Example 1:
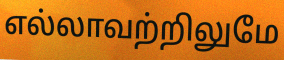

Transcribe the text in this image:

எல்லாவற்றிலுமே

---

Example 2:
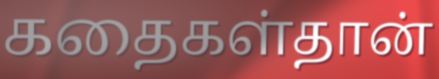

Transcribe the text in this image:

கதைகள்தான்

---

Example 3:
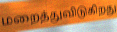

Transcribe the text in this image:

மறைத்துவிடுகிறது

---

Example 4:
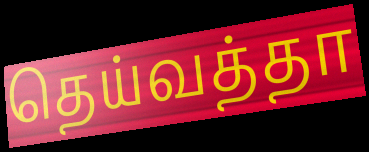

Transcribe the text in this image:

தெய்வத்தா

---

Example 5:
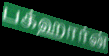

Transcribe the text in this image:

பக்ஹார்ன்